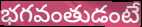
భగవంతుడంటే